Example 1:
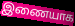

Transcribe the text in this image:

இணையாக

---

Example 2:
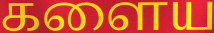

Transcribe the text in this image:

களைய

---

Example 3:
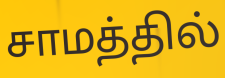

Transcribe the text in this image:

சாமத்தில்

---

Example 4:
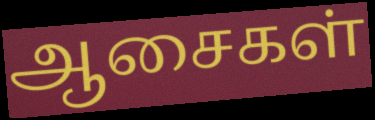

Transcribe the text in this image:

ஆசைகள்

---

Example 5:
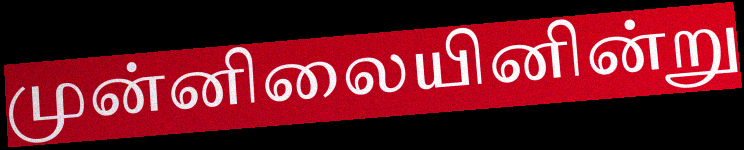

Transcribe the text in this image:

முன்னிலையினின்று